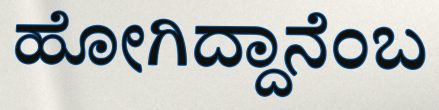
ಹೋಗಿದ್ದಾನೆಂಬ